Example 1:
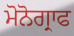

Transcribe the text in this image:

ਮੋਨੋਗ੍ਰਾਫ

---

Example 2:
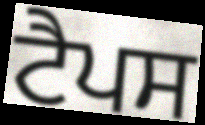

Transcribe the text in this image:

ਟੈਪਸ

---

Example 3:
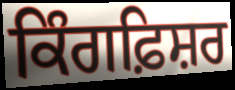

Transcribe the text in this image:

ਕਿੰਗਫ਼ਿਸ਼ਰ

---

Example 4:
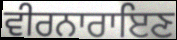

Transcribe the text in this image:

ਵੀਰਨਾਰਾਇਣ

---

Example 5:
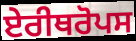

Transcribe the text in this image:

ਏਰੀਥਰੋਪਸ